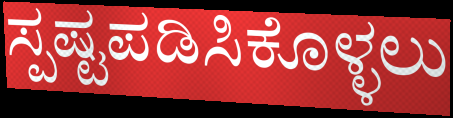
ಸ್ಪಷ್ಟಪಡಿಸಿಕೊಳ್ಳಲು